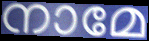
നാമേ